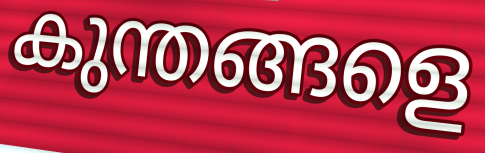
കുന്തങ്ങളെ